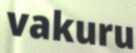
vakuru